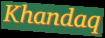
Khandaq